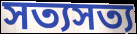
সত্যসত্য